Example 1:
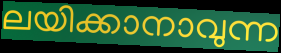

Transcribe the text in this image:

ലയിക്കാനാവുന്ന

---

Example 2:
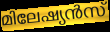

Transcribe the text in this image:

മിലേഷ്യൻസ്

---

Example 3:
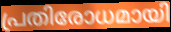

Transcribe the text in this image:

പ്രതിരോധമായി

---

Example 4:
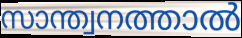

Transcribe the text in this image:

സാന്ത്വനത്താൽ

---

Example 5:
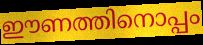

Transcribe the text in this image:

ഈണത്തിനൊപ്പം